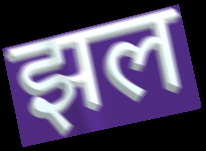
झल